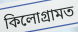
কিলোগ্ৰামত